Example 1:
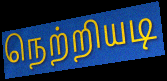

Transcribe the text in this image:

நெற்றியடி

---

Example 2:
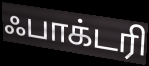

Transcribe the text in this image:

ஃபாக்டரி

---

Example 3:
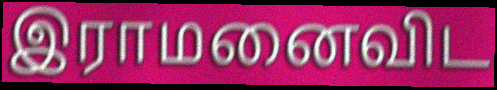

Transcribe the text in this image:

இராமனைவிட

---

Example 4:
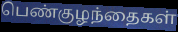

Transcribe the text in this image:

பெண்குழந்தைகள்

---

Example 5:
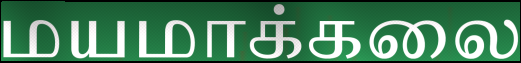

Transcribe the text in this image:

மயமாக்கலை